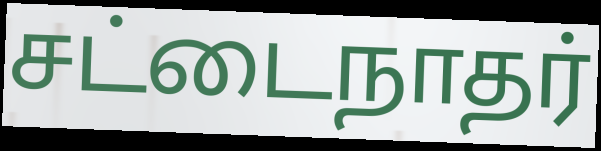
சட்டைநாதர்